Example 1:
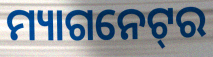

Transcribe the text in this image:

ମ୍ୟାଗନେଟ୍‌ର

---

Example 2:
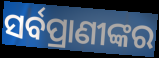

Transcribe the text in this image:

ସର୍ବପ୍ରାଣୀଙ୍କର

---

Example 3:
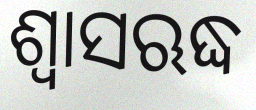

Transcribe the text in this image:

ଶ୍ୱାସଋଦ୍ଧ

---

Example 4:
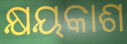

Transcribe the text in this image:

କ୍ଷୟକାଶ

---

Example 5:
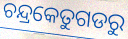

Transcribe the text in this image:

ଚନ୍ଦ୍ରକେତୁଗଡରୁ